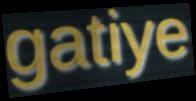
gatiye